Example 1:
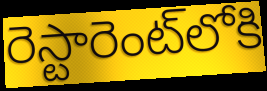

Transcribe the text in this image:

రెస్టారెంట్‌లోకి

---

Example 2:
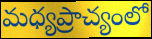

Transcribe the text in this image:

మధ్యప్రాచ్యంలో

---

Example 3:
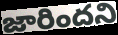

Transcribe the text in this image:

జారిందని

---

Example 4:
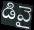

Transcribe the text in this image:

డివై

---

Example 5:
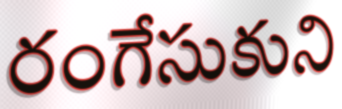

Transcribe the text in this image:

రంగేసుకుని